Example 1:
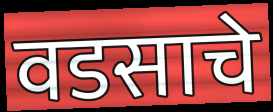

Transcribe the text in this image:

वडसाचे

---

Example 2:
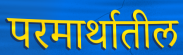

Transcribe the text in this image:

परमार्थातील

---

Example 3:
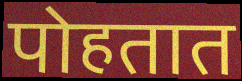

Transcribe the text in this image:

पोहतात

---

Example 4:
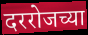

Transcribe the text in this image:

दररोजच्या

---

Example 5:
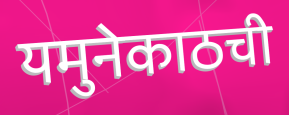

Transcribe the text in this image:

यमुनेकाठची